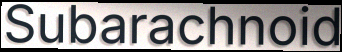
Subarachnoid